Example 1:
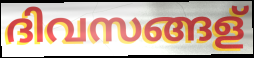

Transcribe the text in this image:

ദിവസങ്ങള്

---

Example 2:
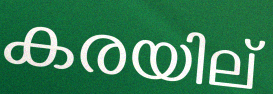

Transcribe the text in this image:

കരയില്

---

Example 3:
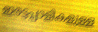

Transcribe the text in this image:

ഇരട്ടപ്പാളികളുള്ള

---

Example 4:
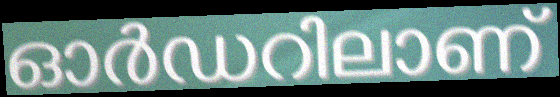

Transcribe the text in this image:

ഓർഡറിലാണ്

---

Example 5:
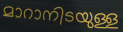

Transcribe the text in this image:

മാറാനിടയുള്ള